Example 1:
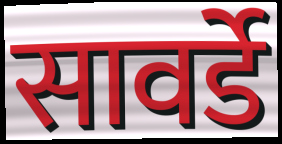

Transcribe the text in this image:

सावर्डे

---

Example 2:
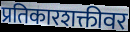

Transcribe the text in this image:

प्रतिकारशक्तीवर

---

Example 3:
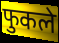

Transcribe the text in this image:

फुकले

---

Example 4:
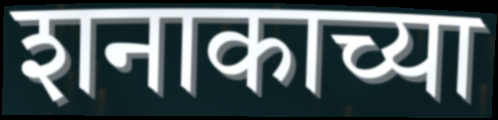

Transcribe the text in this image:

शनाकाच्या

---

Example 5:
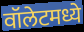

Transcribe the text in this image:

वॉलेटमध्ये